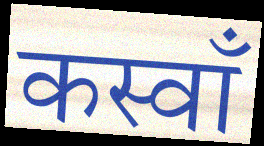
कस्वाँ